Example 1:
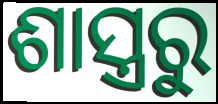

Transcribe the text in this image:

ଶାସ୍ତ୍ରରୁ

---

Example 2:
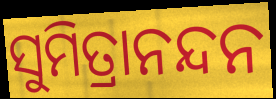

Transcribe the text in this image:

ସୁମିତ୍ରାନନ୍ଦନ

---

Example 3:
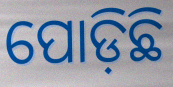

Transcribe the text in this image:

ପୋଡ଼ିଛି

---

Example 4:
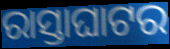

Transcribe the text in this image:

ରାସ୍ତାଘାଟର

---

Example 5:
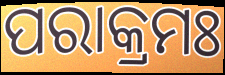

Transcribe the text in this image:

ପରାକ୍ରମଃ